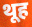
थूह